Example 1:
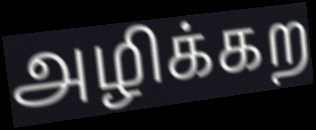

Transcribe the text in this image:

அழிக்கற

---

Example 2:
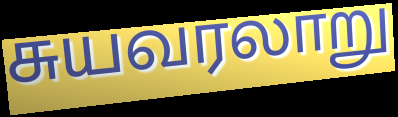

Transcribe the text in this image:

சுயவரலாறு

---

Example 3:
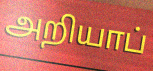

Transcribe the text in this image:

அறியாப்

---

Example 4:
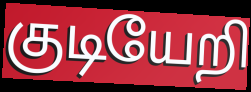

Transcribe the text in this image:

குடியேறி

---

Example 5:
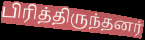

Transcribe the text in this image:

பிரித்திருந்தனர்